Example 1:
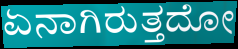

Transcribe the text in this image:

ಏನಾಗಿರುತ್ತದೋ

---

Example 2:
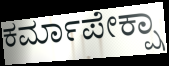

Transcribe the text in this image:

ಕರ್ಮಾಪೇಕ್ಷಾ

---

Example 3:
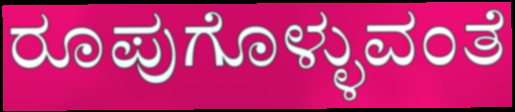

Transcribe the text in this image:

ರೂಪುಗೊಳ್ಳುವಂತೆ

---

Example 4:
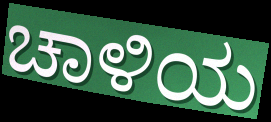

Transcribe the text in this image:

ಚಾಳಿಯ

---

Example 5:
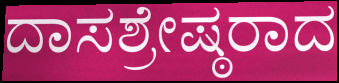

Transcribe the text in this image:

ದಾಸಶ್ರೇಷ್ಠರಾದ